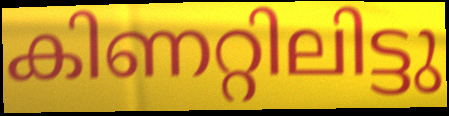
കിണറ്റിലിട്ടു